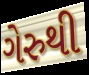
ગેરુથી